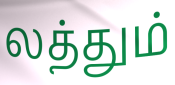
லத்தும்